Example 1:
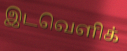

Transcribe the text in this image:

இடவெளிக்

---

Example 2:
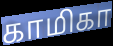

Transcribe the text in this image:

காமிகா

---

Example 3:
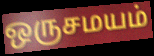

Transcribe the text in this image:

ஒருசமயம்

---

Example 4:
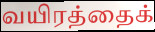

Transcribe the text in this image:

வயிரத்தைக்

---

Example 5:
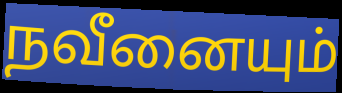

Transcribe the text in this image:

நவீனையும்